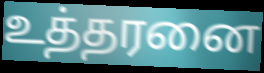
உத்தரனை